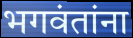
भगवंतांना